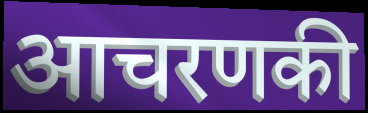
आचरणकी